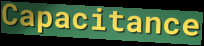
Capacitance